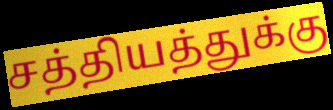
சத்தியத்துக்கு